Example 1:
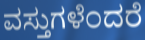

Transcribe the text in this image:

ವಸ್ತುಗಳೆಂದರೆ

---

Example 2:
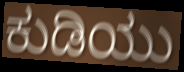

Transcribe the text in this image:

ಕುಡಿಯು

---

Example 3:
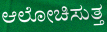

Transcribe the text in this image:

ಆಲೋಚಿಸುತ್ತ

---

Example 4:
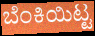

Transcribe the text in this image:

ಬೆಂಕಿಯಿಟ್ಟ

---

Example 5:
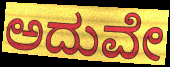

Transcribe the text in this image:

ಅದುವೇ